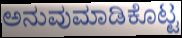
ಅನುವುಮಾಡಿಕೊಟ್ಟ